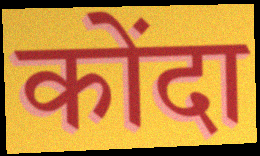
कोंदा